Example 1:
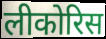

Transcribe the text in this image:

लीकोरिस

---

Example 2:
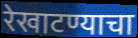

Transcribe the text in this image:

रेखाटण्याचा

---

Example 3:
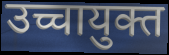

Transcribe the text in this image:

उच्‍चायुक्‍त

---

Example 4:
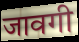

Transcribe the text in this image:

जावगी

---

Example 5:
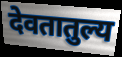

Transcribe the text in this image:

देवतातुल्य